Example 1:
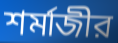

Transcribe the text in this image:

শর্মাজীর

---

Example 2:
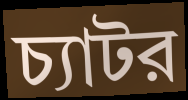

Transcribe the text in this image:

চ্যাটর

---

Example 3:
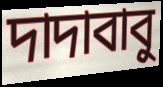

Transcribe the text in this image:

দাদাবাবু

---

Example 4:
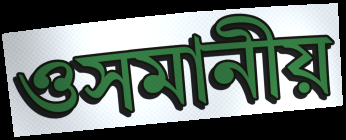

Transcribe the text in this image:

ওসমানীয়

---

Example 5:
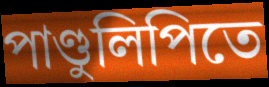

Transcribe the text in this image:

পাণ্ডুলিপিতে